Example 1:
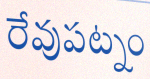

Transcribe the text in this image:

రేవుపట్నం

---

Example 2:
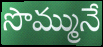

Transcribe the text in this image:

సొమ్మునే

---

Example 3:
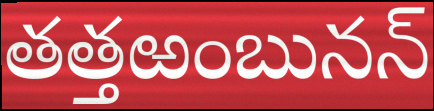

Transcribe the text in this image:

తత్తఱంబునన్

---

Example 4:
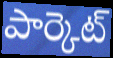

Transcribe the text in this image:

పార్కెట్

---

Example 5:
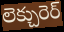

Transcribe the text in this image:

లెక్చురెర్